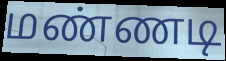
மண்ணடி